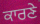
ਕਾਰਣੇ